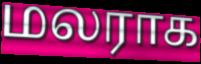
மலராக